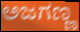
ಅಜಗಣ್ಣ